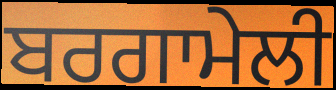
ਬਰਗਾਮੇਲੀ